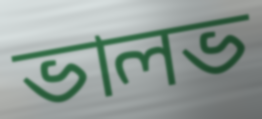
ভালভ